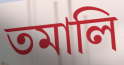
তমালি